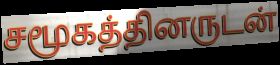
சமூகத்தினருடன்